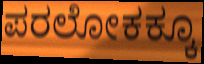
ಪರಲೋಕಕ್ಕೂ